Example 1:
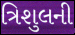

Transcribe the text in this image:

ત્રિશુલની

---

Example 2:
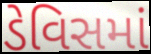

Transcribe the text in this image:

ડેવિસમાં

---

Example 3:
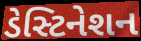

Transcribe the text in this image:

ડેસ્ટિનેશન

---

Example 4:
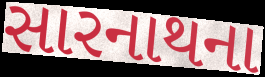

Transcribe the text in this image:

સારનાથના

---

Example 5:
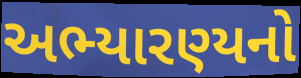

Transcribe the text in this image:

અભ્યારણ્યનો